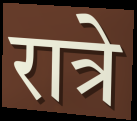
रात्रे